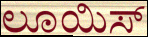
ಲೂಯಿಸ್